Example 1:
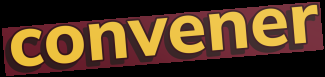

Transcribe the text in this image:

convener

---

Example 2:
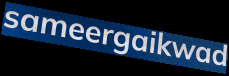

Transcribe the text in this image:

sameergaikwad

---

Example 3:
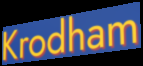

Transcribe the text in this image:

Krodham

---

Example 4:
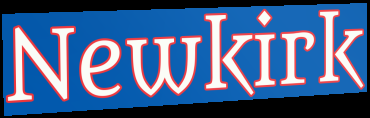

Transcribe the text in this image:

Newkirk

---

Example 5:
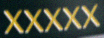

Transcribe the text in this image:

XXXXX